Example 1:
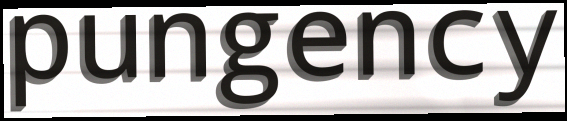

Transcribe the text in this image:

pungency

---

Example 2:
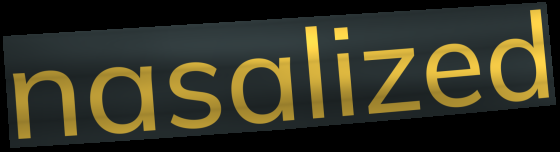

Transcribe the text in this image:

nasalized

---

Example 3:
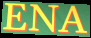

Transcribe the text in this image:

ENA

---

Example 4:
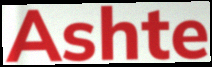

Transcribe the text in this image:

Ashte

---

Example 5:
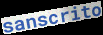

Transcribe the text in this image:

sanscrito